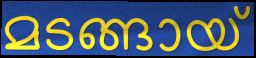
മടങ്ങായ്